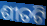
ଶୀତଟି